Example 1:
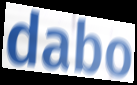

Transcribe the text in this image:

dabo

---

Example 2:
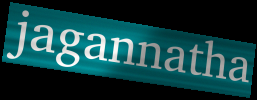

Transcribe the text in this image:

jagannatha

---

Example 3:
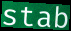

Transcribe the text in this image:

stab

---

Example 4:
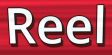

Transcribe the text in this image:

Reel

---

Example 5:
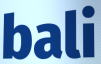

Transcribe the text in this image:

bali